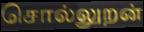
சொல்லுறன்